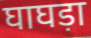
घाघड़ा